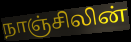
நாஞ்சிலின்